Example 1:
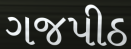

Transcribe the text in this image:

ગજપીઠ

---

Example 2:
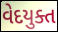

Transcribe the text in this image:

વેદયુક્ત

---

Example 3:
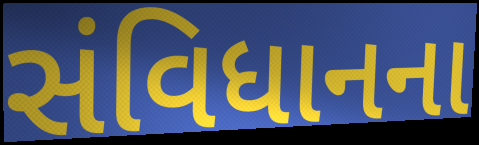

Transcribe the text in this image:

સંવિધાનના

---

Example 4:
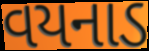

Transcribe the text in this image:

વયનાડ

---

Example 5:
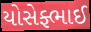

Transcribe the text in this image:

યોસેફ્ભાઈ